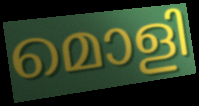
മൊളി